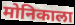
मोनिकाला